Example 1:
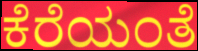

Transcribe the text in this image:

ಕೆರೆಯಂತೆ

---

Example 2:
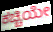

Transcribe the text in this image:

ಕಚ್ಚಿಯೇ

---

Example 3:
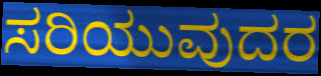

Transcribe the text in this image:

ಸರಿಯುವುದರ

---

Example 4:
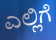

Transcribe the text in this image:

ಎಲ್ಲಿಗೆ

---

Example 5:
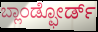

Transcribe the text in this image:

ಬ್ಲಾಂಡ್ಫೋರ್ಡ್